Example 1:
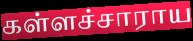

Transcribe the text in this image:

கள்ளச்சாராய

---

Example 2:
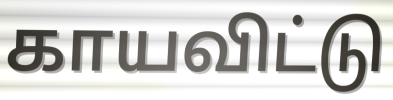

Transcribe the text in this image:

காயவிட்டு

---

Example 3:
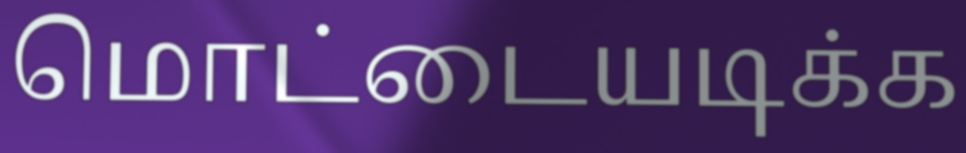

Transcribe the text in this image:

மொட்டையடிக்க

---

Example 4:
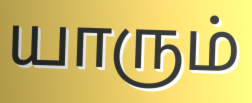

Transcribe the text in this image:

யாரும்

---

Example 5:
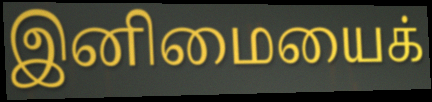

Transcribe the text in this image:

இனிமையைக்